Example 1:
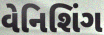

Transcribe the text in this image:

વેનિશિંગ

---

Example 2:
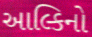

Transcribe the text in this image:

આલ્કિનો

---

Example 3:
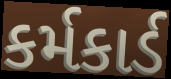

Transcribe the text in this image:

કર્મકાર્ડ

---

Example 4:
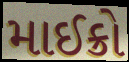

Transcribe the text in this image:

માઈક્રો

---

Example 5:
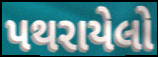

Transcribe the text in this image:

પથરાયેલો